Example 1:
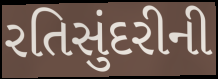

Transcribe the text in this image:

રતિસુંદરીની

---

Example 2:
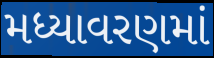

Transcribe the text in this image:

મધ્યાવરણમાં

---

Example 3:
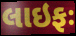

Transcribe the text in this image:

લાઇફઃ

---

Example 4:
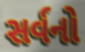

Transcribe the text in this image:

સર્વનો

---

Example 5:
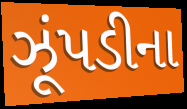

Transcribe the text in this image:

ઝૂંપડીના